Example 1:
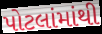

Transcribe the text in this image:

પોટલાંમાંથી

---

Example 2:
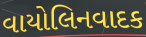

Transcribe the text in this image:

વાયોલિનવાદક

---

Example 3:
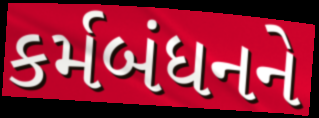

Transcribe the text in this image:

કર્મબંધનને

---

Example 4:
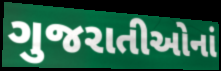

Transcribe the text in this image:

ગુજરાતીઓનાં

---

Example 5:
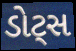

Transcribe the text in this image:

ડોટ્સ